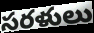
సరళులు